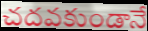
చదవకుండానే